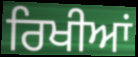
ਰਿਖੀਆਂ